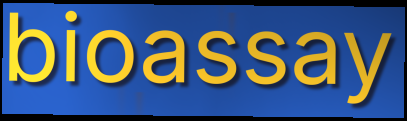
bioassay